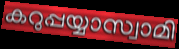
കറുപ്പയ്യാസ്വാമി